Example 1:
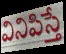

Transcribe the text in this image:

వినిపిస్తే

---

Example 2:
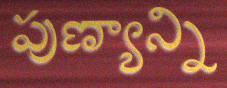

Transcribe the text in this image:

పుణ్యాన్ని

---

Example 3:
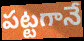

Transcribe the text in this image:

పట్టగానే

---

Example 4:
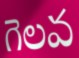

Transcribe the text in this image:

గెలవ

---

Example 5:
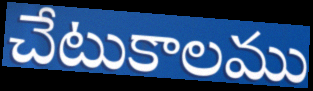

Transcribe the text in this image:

చేటుకాలము